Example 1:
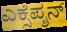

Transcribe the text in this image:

ಎಕ್ಸೆಪ್ಶನ್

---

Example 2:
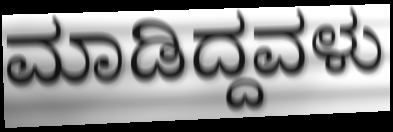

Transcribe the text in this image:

ಮಾಡಿದ್ದವಳು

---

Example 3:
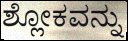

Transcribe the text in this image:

ಶ್ಲೋಕವನ್ನು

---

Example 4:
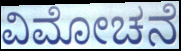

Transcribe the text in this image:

ವಿಮೋಚನೆ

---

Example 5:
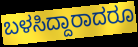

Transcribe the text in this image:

ಬಳಸಿದ್ದಾರಾದರೂ